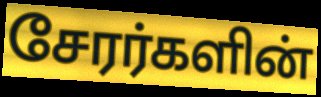
சேரர்களின்